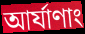
আর্যাণাং